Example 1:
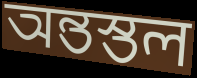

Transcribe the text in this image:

অন্তস্তল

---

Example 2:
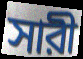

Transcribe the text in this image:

সারী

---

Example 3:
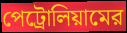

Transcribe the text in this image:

পেট্রোলিয়ামের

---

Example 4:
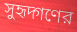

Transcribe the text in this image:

সুহৃদ্গণের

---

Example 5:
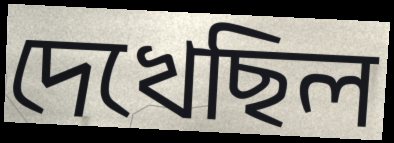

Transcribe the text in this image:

দেখেছিল